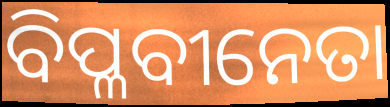
ବିପ୍ଳବୀନେତା